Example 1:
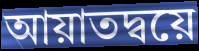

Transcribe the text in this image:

আয়াতদ্বয়ে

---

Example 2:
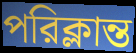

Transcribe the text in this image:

পরিক্লান্ত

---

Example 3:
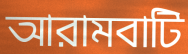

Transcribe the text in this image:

আরামবাটি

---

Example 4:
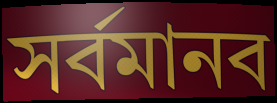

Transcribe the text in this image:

সর্বমানব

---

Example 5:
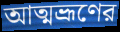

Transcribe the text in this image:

আত্মভ্রূণের